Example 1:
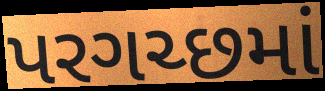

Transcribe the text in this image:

પરગચ્છમાં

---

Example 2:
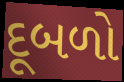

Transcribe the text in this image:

દૂબળો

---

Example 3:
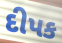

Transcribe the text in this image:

દીપક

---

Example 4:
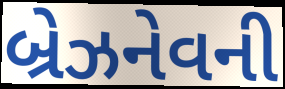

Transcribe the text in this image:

બ્રેઝનેવની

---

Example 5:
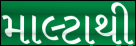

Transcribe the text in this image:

માલ્ટાથી